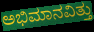
ಅಭಿಮಾನವಿತ್ತು